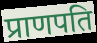
प्राणपति